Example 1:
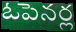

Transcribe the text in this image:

ఓపెనర్ల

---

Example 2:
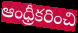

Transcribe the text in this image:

ఆంధ్రీకరించి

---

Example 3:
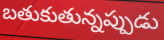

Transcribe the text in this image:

బతుకుతున్నప్పుడు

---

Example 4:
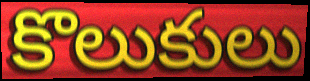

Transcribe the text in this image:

కొలుకులు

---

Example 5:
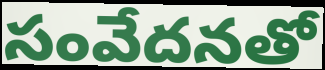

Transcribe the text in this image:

సంవేదనతో